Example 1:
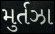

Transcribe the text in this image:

મુર્તઝા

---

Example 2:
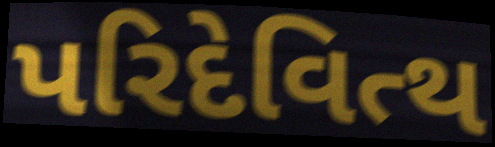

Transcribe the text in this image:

પરિદેવિત્થ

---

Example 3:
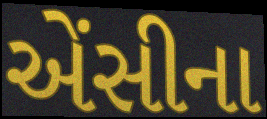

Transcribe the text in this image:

એંસીના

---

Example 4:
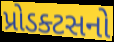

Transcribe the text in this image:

પ્રોડક્ટસનો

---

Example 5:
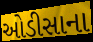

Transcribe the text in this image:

ઓડીસાના